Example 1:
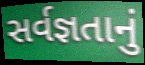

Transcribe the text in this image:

સર્વજ્ઞતાનું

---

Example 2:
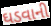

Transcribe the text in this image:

ઘડવાની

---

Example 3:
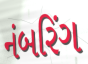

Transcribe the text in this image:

નંબરિંગ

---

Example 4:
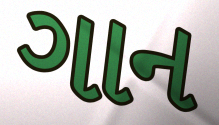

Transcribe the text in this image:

ગાન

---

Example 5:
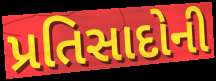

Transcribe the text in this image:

પ્રતિસાદોની